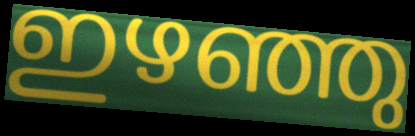
ഇഴഞ്ഞു